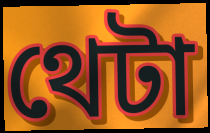
থেটা